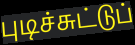
புடிச்சுட்டுப்